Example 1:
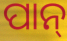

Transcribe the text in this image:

ପାନ୍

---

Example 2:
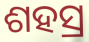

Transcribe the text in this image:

ଶହସ୍ର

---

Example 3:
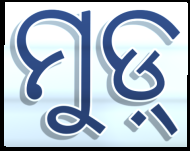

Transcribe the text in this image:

ମୁଡ଼୍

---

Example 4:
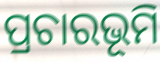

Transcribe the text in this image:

ପ୍ରଚାରଭୂମି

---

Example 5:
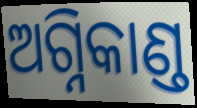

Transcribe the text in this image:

ଅଗ୍ନିକାଣ୍ଡ